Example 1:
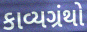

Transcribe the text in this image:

કાવ્યગ્રંથો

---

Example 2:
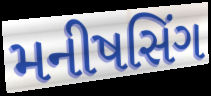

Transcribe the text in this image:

મનીષસિંગ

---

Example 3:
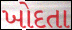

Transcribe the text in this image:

ખોદતા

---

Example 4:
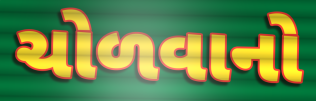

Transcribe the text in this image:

ચોળવાનો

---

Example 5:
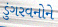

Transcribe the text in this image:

ડુંગરવનોને